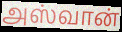
அஸ்வான்